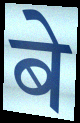
बे